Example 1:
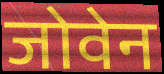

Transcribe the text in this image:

जोवेन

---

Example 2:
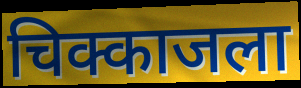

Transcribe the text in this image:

चिक्काजला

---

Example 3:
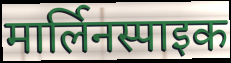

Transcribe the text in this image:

मार्लिनस्पाइक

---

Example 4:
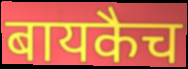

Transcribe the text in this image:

बायकैच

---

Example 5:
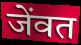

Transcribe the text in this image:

जेंवत